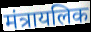
मंत्रायलिक